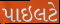
પાઇલટે